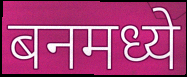
बनमध्ये